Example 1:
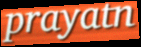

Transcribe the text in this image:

prayatn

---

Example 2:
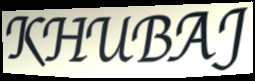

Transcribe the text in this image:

KHUBAJ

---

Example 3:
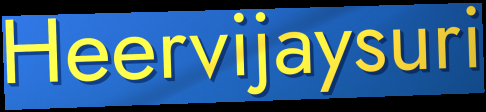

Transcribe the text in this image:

Heervijaysuri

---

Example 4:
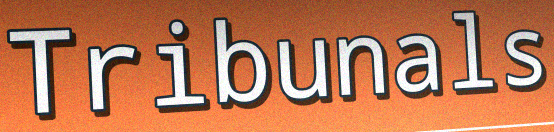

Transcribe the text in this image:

Tribunals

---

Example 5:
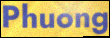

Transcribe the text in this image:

Phuong